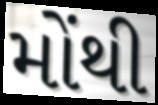
મોંથી